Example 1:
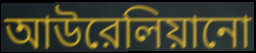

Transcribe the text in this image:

আউরেলিয়ানো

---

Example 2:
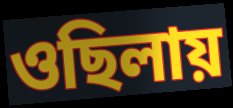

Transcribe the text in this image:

ওছিলায়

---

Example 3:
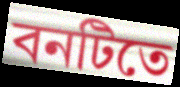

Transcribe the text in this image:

বনটিতে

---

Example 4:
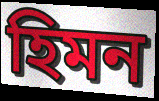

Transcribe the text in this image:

হিমন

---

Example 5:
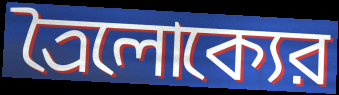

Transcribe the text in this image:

ত্রৈলোক্যের